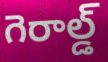
గెరాల్డ్